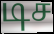
டிச